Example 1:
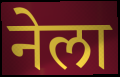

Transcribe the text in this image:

नेला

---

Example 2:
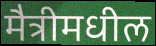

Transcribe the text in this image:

मैत्रीमधील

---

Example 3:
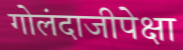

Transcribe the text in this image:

गोलंदाजीपेक्षा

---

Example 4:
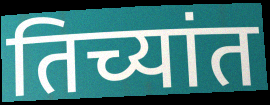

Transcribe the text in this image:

तिच्यांत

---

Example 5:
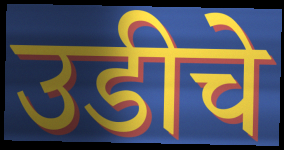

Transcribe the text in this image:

उडीचे